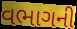
વભાગની